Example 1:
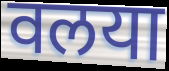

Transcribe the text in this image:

वलया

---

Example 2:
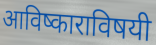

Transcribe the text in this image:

आविष्काराविषयी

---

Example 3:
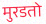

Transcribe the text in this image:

मुरडतो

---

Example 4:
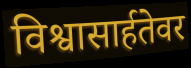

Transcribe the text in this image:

विश्वासार्हतेवर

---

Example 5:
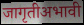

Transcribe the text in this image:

जागृतीअभावी